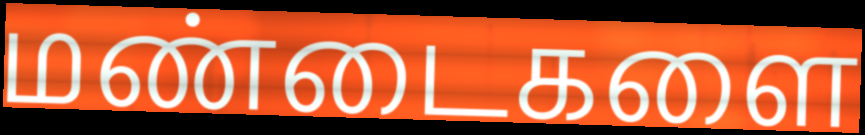
மண்டைகளை